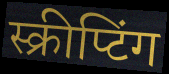
स्क्रीप्टिंग